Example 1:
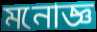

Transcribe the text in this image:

মনোজ্ঞ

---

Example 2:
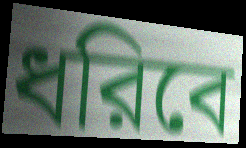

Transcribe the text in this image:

ধরিবে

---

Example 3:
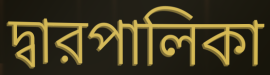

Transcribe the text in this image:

দ্বারপালিকা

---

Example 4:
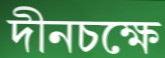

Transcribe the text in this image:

দীনচক্ষে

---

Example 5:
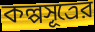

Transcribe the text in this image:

কল্পসূত্রের